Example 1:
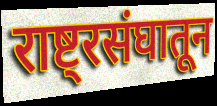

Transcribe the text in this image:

राष्ट्रसंघातून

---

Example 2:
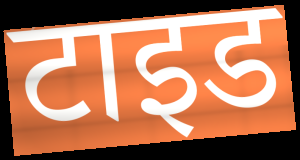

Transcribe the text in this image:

टाइड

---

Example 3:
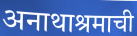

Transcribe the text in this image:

अनाथाश्रमाची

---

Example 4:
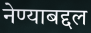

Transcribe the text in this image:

नेण्याबद्दल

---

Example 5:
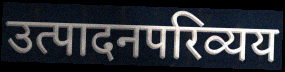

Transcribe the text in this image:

उत्पादनपरिव्यय